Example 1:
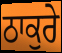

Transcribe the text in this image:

ਠਾਕੁਰੇ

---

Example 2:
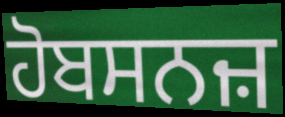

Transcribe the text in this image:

ਹੋਬਸਨਜ਼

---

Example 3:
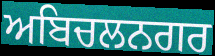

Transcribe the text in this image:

ਅਬਿਚਲਨਗਰ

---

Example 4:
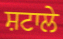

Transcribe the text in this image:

ਸ਼ਟਾਲੇ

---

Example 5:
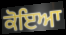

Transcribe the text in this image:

ਕੋਇਆ